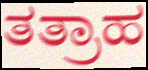
ತತ್ರಾಹ